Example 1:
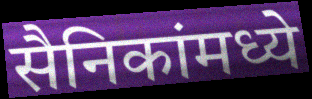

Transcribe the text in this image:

सैनिकांमध्ये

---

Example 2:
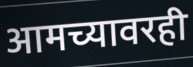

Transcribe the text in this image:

आमच्यावरही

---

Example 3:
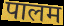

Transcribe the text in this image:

पालम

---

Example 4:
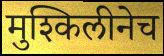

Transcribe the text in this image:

मुश्किलीनेच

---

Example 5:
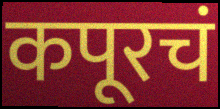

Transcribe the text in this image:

कपूरचं